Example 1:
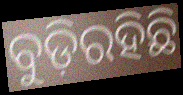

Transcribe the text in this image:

ବୁଡ଼ିରହିଛି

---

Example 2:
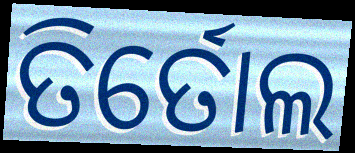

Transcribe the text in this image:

ତିର୍ତୋଲ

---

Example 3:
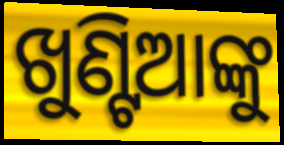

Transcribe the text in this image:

ଖୁଣ୍ଟିଆଙ୍କୁ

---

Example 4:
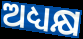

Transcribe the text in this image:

ଅଧ୍ୟକ୍ଷ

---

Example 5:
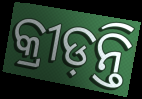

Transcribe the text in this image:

କ୍ରୀଡ଼ନ୍ତି